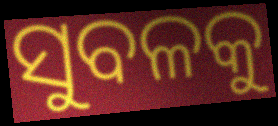
ସୁବଳକୁ